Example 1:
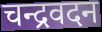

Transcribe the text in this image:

चन्द्रवदन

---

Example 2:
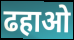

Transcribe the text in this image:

ढहाओ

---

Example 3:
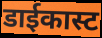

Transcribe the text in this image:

डाईकास्ट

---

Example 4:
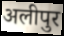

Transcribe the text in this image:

अलीपुर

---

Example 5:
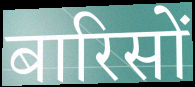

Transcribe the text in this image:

बारिसों